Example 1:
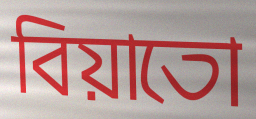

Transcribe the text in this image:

বিয়াতো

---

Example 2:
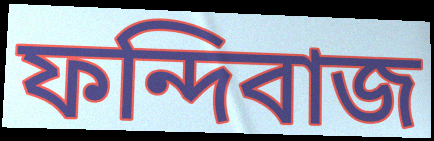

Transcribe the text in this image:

ফন্দিবাজ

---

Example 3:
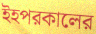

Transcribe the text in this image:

ইহপরকালের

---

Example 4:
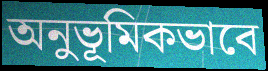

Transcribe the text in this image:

অনুভূমিকভাবে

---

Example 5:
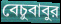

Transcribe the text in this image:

বেচুবাবুর